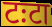
टःटा